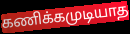
கணிக்கமுடியாத